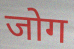
जोग